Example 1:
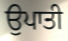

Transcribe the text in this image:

ਉਪਾਤੀ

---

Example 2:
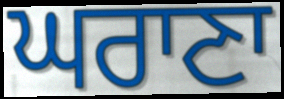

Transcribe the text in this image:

ਘਰਾਣਾ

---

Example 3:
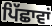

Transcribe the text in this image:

ਪਿੱਛਾਵਾਂ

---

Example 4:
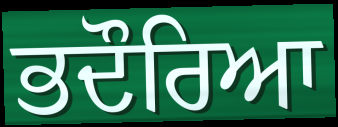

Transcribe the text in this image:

ਭਦੌਰਿਆ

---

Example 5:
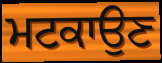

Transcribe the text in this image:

ਮਟਕਾਉਣ